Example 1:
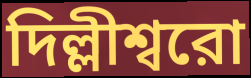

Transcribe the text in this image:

দিল্লীশ্বরো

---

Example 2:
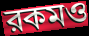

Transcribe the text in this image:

রকমও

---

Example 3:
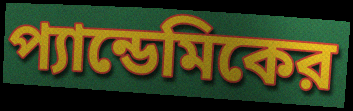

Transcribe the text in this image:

প্যান্ডেমিকের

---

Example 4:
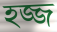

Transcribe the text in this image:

হজ্জ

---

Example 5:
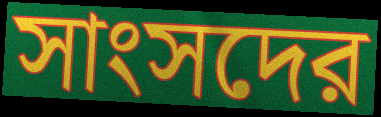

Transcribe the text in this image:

সাংসদের